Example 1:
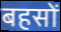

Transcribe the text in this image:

बहसों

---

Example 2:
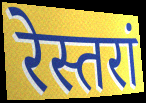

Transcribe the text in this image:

रेस्तरां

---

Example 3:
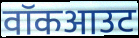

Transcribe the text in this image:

वॉकआउट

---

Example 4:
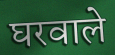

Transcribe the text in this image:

घरवाले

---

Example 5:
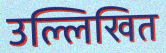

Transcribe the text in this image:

उल्लिखित